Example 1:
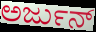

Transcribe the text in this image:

ಅರ್ಜುನ್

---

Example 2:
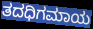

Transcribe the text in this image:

ತದಧಿಗಮಾಯ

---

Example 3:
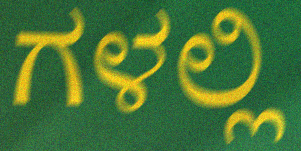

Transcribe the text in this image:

ಗಳಲ್ಲಿ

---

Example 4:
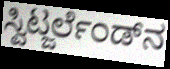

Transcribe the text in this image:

ಸ್ವಿಟ್ಜರ್ಲೆಂಡ್‌ನ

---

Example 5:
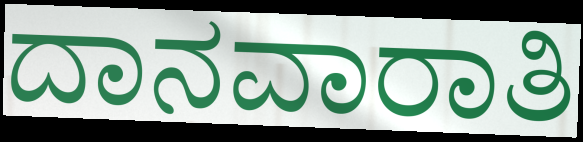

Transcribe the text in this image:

ದಾನವಾರಾತಿ